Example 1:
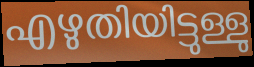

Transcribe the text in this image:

എഴുതിയിട്ടുള്ളു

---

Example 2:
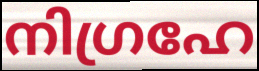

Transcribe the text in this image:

നിഗ്രഹേ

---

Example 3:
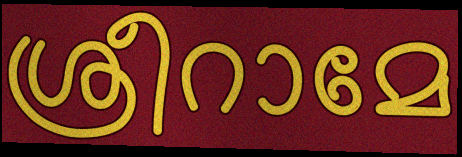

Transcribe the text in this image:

ശ്രീറാമേ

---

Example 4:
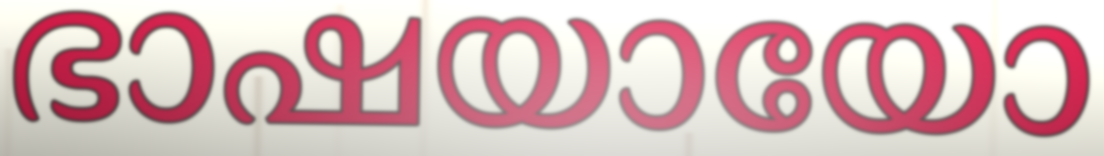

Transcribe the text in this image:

ഭാഷയായോ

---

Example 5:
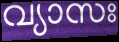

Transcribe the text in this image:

വ്യാസഃ